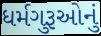
ધર્મગુરૂઓનું